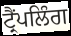
ਟ੍ਰੈਂਪਲਿੰਗ